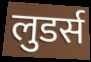
लुडर्स